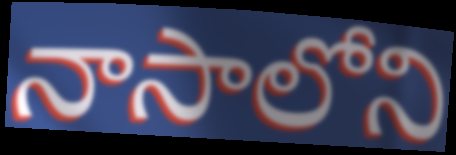
నాసాలోని